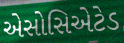
એસોસિએટેડ